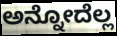
ಅನ್ನೋದೆಲ್ಲ